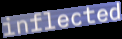
inflected